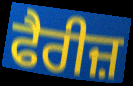
ਫੈਰੀਜ਼